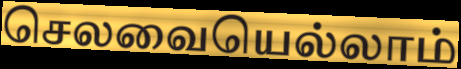
செலவையெல்லாம்